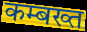
कम्बख्त